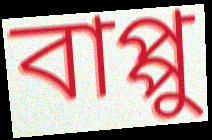
বাপ্পু